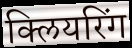
क्लियरिंग